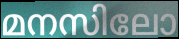
മനസിലോ